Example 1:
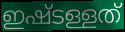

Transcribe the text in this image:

ഇഷ്ടള്ളത്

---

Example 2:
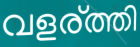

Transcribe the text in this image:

വളര്ത്തി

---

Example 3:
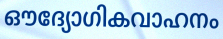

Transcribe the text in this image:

ഔദ്യോഗികവാഹനം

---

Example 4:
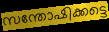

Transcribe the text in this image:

സന്തോഷിക്കട്ടെ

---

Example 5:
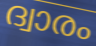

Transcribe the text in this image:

ദ്വാരം